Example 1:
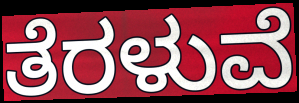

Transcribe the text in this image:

ತೆರಳುವೆ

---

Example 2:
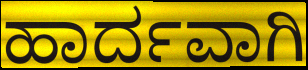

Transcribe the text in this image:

ಹಾರ್ದವಾಗಿ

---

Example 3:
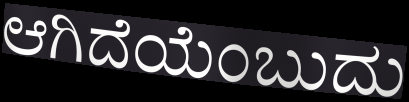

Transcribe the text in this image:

ಆಗಿದೆಯೆಂಬುದು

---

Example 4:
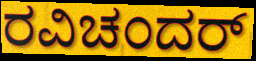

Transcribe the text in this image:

ರವಿಚಂದರ್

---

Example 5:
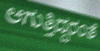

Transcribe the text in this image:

ಆಗುತ್ತಿದ್ದರಂತೆ